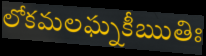
లోకమలఘ్నకీఋతిః